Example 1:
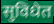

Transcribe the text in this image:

सुविधेत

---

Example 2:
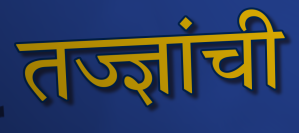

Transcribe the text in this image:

तज्ज्ञांची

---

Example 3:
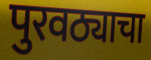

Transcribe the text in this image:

पुरवठ्याचा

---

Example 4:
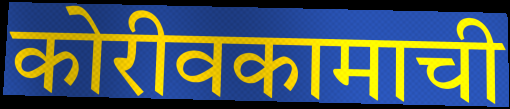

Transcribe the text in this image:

कोरीवकामाची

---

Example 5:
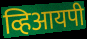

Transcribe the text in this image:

व्हिआयपी